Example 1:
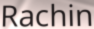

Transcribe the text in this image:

Rachin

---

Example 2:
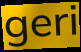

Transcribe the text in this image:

geri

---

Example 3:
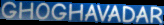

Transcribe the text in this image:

GHOGHAVADAR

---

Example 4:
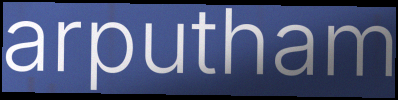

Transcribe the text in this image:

arputham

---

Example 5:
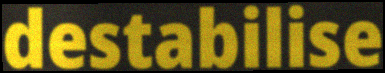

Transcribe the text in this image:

destabilise